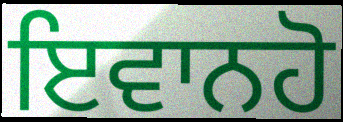
ਇਵਾਨਹੋ